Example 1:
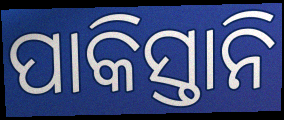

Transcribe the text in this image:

ପାକିସ୍ତାନି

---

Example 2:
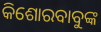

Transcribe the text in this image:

କିଶୋରବାବୁଙ୍କ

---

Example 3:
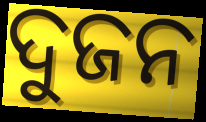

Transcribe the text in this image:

ଦୁଜନ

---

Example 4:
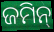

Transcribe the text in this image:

ଜମିନ୍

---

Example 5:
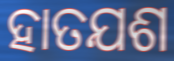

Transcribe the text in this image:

ହାତଯଶ